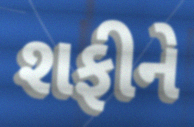
શફીને